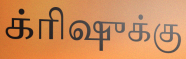
க்ரிஷுக்கு